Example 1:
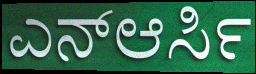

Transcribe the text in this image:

ಎನ್ಆರ್ಸಿ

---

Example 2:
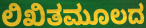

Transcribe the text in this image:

ಲಿಖಿತಮೂಲದ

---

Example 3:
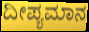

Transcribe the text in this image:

ದೀಪ್ಯಮಾನ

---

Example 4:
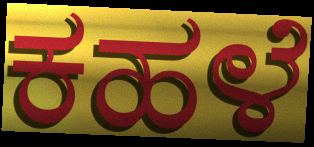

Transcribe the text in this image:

ಕಹಳೆ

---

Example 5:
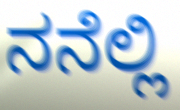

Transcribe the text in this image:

ನನೆಲ್ಲಿ